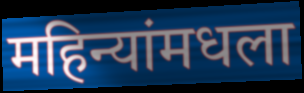
महिन्यांमधला